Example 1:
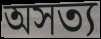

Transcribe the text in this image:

অসত্য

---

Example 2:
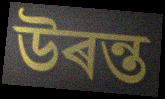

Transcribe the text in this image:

উৰন্ত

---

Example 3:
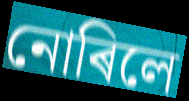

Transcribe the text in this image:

নোৰিলে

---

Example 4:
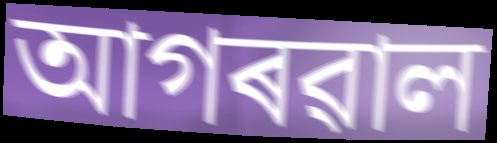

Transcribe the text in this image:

আগৰৱাল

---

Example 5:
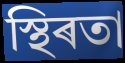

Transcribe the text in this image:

স্থিৰতা